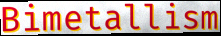
Bimetallism